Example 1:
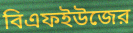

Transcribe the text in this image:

বিএফইউজের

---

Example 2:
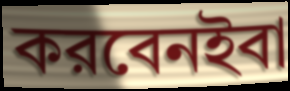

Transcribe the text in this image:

করবেনইবা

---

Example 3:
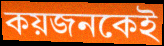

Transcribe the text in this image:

কয়জনকেই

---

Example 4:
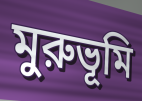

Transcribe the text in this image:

মুরুভূমি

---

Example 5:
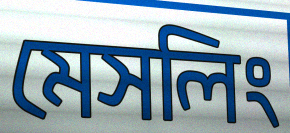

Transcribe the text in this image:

মেসলিং